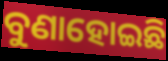
ବୁଣାହୋଇଛି